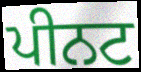
ਪੀਨਟ